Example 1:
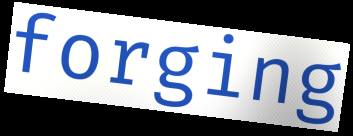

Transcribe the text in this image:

forging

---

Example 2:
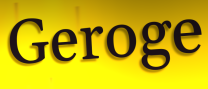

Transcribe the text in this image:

Geroge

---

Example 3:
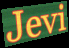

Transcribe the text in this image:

Jevi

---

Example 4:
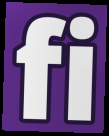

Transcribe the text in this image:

fi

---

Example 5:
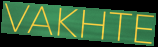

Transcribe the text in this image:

VAKHTE